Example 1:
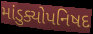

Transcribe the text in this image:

માંડુક્યોપનિષદ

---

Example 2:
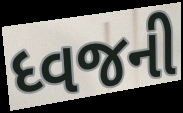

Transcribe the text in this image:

ધ્વજની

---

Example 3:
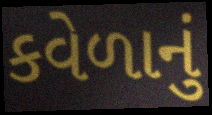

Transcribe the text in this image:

કવેળાનું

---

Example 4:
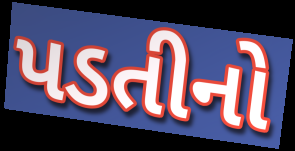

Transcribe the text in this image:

પડતીનો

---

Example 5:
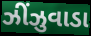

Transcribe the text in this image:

ઝીંઝુવાડા